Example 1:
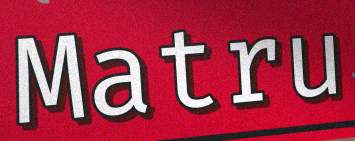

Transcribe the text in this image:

Matru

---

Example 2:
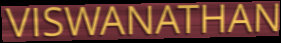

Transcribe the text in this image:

VISWANATHAN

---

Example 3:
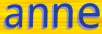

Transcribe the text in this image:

anne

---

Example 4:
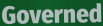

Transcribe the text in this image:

Governed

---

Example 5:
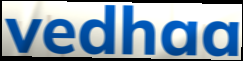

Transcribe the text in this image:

vedhaa